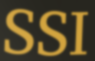
SSI